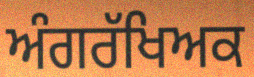
ਅੰਗਰੱਖਿਅਕ